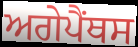
ਅਗੇਪੈਂਥਸ